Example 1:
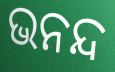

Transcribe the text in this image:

ଭନନ୍ଦ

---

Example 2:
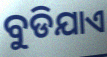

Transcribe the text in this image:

ବୁଡିଯାଏ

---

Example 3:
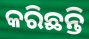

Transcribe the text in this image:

କରିଛନ୍ତି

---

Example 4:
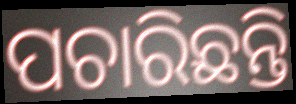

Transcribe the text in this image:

ପଚାରିଛନ୍ତି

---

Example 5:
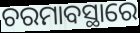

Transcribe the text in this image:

ଚରମାବସ୍ଥାରେ